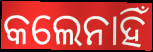
କଲେନାହିଁ